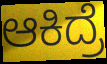
ಆಕಿದ್ರೆ